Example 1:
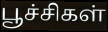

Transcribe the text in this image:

பூச்சிகள்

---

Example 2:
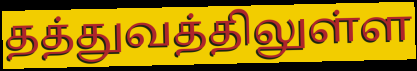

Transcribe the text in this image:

தத்துவத்திலுள்ள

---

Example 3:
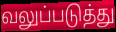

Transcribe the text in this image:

வலுப்படுத்து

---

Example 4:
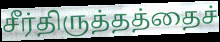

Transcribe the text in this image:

சீர்திருத்தத்தைச்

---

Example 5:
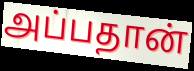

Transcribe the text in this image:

அப்பதான்